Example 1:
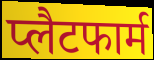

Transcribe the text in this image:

प्लैटफार्म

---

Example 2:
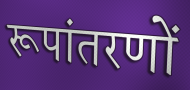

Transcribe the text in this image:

रूपांतरणों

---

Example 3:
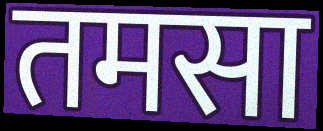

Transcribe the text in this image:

तमसा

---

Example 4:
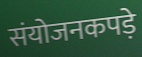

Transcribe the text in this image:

संयोजनकपड़े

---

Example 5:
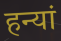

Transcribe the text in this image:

हन्यां